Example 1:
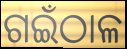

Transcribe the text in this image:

ଗଇଁଠାଳ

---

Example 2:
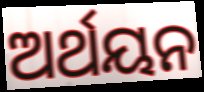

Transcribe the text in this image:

ଅର୍ଥୟନ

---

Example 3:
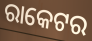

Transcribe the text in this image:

ରାକେଟର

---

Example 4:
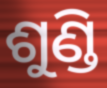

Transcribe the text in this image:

ଶୁଣ୍ଡି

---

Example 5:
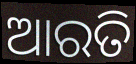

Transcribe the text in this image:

ଆରତି